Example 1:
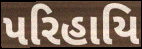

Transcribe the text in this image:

પરિહાયિ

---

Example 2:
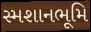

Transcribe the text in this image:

સ્મશાનભૂમિ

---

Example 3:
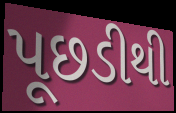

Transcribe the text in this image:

પૂછડીથી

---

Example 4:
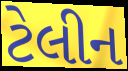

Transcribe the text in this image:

ટેલીન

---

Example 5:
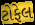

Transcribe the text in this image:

ટોફેલ